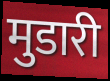
मुडारी